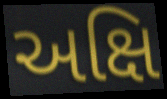
અક્ષિ